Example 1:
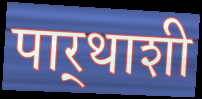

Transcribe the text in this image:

पार्थाशी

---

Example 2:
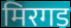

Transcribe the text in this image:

मिरगड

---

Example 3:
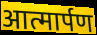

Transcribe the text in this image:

आत्मार्पण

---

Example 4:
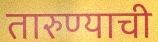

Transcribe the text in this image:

तारुण्याची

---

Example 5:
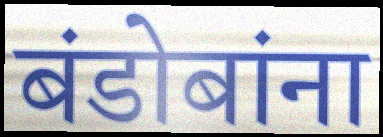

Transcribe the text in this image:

बंडोबांना